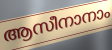
ആസീനാനാം